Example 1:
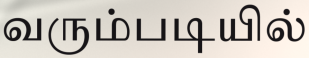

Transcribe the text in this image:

வரும்படியில்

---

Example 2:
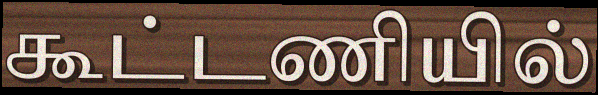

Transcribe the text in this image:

கூட்டணியில்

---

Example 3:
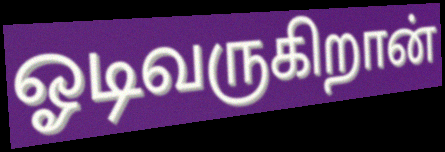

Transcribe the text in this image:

ஓடிவருகிறான்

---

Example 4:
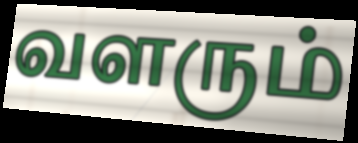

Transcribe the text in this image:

வளரும்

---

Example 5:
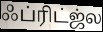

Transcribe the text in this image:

ஃப்ரிட்ஜ்ல